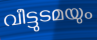
വീട്ടുടമയും